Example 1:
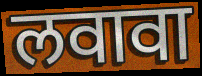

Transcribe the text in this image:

लवावा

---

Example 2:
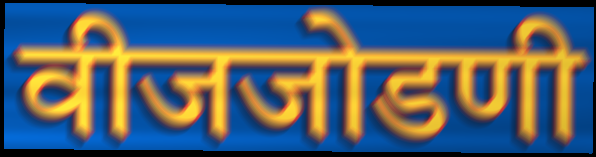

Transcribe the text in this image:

वीजजोडणी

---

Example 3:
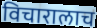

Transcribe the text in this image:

विचारालाच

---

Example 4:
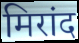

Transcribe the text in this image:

मिरांद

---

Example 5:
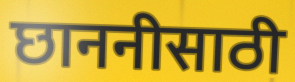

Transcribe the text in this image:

छाननीसाठी